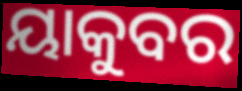
ୟାକୁବର